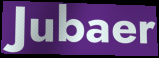
Jubaer